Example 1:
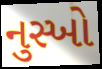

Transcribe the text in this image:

નુસ્ખો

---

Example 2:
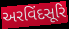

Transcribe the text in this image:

અરવિંદસૂરિ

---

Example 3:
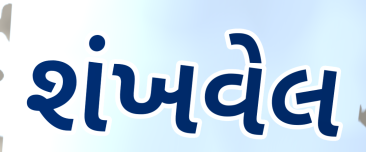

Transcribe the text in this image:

શંખવેલ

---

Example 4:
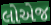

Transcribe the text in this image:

લોએજ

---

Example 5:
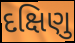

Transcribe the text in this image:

દક્ષિણુ